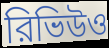
রিভিউও